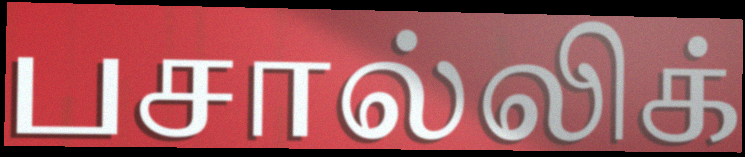
பசால்லிக்